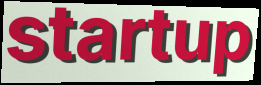
startup